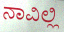
ನಾವಿಲ್ಲಿ